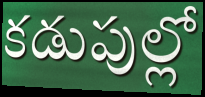
కడుపుల్లో